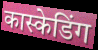
कास्केडिंग